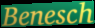
Benesch